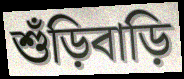
শুঁড়িবাড়ি